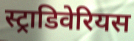
स्ट्राडिवेरियस